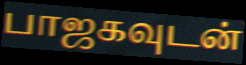
பாஜகவுடன்